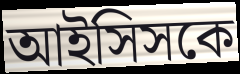
আইসিসকে